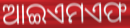
ଆଇଏମଏଫ